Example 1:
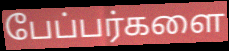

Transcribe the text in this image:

பேப்பர்களை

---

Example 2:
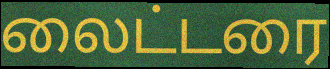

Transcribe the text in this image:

லைட்டரை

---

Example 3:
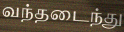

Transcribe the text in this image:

வந்தடைந்து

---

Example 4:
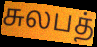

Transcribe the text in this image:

சுலபத்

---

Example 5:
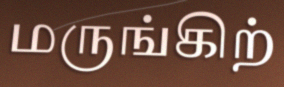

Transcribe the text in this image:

மருங்கிற்